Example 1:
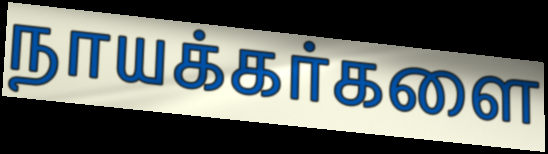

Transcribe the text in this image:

நாயக்கர்களை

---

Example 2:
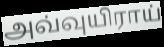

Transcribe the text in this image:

அவ்வுயிராய்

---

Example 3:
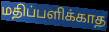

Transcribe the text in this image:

மதிப்பளிக்காத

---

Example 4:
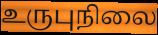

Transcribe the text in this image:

உருபுநிலை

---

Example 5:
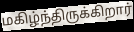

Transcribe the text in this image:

மகிழ்ந்திருக்கிறார்